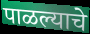
पाळल्याचे